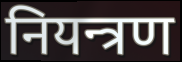
नियन्त्रण